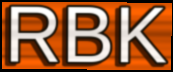
RBK